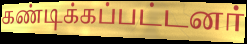
கண்டிக்கப்பட்டனர்